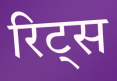
रिट्स